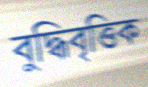
বুদ্ধিবৃত্তিক